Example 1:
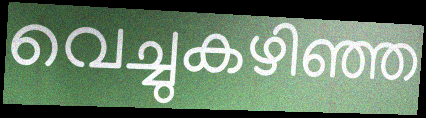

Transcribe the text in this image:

വെച്ചുകഴിഞ്ഞ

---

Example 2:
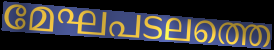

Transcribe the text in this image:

മേഘപടലത്തെ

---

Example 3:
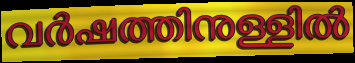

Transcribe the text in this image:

വർഷത്തിനുള്ളിൽ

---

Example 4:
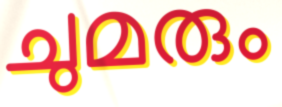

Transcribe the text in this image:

ചുമരും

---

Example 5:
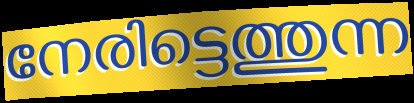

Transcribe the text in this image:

നേരിട്ടെത്തുന്ന